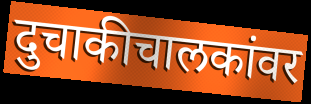
दुचाकीचालकांवर